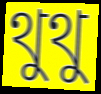
থুথু